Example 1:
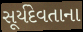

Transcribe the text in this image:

સૂર્યદેવતાના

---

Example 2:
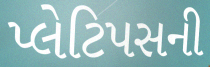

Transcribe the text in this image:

પ્લેટિપસની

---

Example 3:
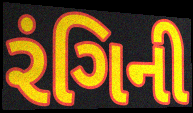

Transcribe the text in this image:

રંગિની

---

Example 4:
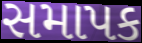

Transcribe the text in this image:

સમાપક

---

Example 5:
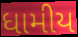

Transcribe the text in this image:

ધામીય